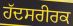
ਹੱਦਸਰੀਰਕ